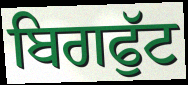
ਬਿਗਫੁੱਟ